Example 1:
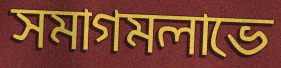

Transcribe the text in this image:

সমাগমলাভে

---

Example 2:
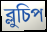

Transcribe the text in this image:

ব্লুচিপ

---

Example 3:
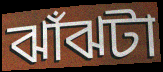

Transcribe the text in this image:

ঝাঁঝটা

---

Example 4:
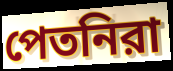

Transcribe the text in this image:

পেতনিরা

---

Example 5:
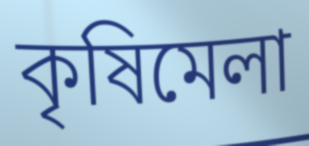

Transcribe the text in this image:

কৃষিমেলা